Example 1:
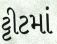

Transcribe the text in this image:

ટ્ટીટમાં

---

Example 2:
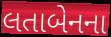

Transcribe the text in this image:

લતાબેનના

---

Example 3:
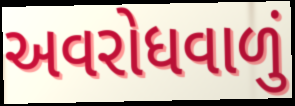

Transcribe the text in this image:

અવરોધવાળું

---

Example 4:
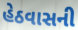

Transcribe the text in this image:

હેઠવાસની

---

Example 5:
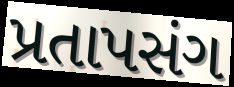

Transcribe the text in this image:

પ્રતાપસંગ